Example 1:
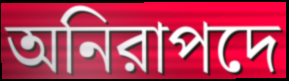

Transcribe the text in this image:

অনিরাপদে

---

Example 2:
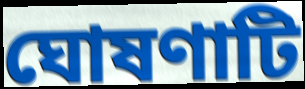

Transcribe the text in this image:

ঘোষণাটি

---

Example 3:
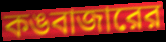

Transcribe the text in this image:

কঙবাজারের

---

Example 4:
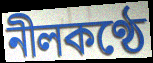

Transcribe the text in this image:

নীলকণ্ঠে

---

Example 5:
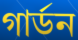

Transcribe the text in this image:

গার্ডন